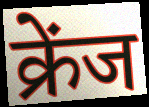
क्रेंज